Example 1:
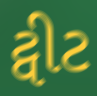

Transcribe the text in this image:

ટ્વીટ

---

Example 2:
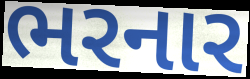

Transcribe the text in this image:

ભરનાર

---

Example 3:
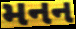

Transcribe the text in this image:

મનન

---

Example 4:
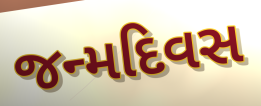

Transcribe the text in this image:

જન્મદિવસ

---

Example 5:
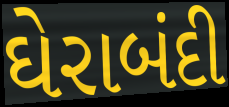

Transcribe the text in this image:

ઘેરાબંદી